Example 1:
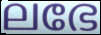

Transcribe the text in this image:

ലഭേ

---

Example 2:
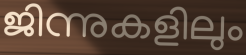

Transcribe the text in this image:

ജിന്നുകളിലും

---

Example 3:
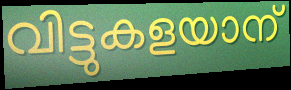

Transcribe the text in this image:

വിട്ടുകളയാന്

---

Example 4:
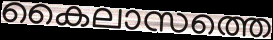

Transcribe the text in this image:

കൈലാസത്തെ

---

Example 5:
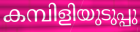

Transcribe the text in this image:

കമ്പിളിയുടുപ്പു